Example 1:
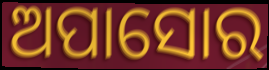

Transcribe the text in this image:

ଅପାସୋର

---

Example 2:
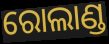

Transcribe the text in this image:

ରୋଲାଣ୍ଡ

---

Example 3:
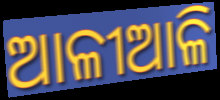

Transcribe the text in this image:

ଆଳୀଆଳି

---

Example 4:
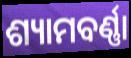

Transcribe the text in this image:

ଶ୍ୟାମବର୍ଣ୍ଣା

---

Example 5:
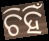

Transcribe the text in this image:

ଚିହିଁ